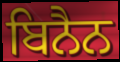
ਬਿਨੈਨ